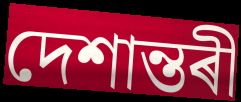
দেশান্তৰী